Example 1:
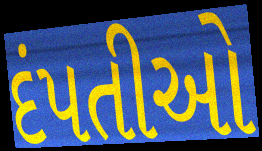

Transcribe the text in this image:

દંપતીઓ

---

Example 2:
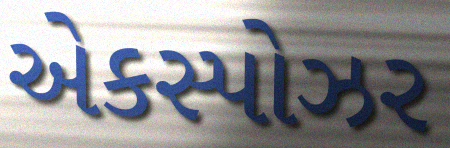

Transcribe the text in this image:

એકસ્પોઝર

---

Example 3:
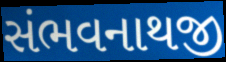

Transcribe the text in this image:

સંભવનાથજી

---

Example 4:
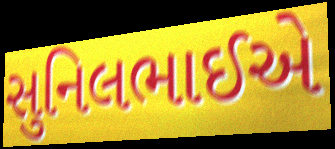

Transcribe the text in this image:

સુનિલભાઈએ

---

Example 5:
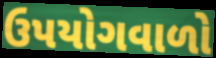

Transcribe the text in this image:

ઉપયોગવાળો